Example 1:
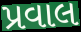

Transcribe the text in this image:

પ્રવાલ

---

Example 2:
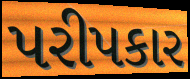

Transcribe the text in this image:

પરીપકાર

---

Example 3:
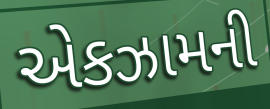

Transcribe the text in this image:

એકઝામની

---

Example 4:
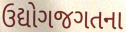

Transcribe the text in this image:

ઉદ્યોગજગતના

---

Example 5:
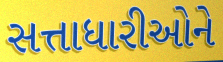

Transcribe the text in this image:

સત્તાધારીઓને